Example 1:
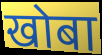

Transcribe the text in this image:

खोबा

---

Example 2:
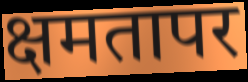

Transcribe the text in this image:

क्षमतापर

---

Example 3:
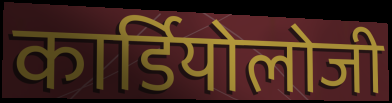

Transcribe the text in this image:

कार्डियोलोजी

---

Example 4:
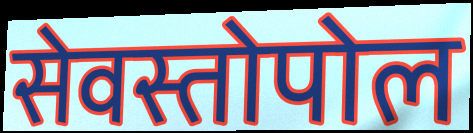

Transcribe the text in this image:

सेवस्तोपोल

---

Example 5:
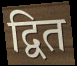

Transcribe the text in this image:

द्वित